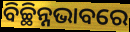
ବିଚ୍ଛିନ୍ନଭାବରେ